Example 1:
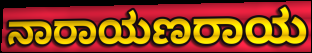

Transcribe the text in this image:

ನಾರಾಯಣರಾಯ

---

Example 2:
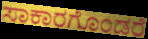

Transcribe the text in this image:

ಸಾಕಾರಗೊಂಡರೆ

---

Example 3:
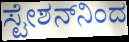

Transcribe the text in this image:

ಸ್ಟೇಶನ್‌ನಿಂದ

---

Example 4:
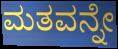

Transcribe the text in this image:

ಮತವನ್ನೇ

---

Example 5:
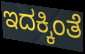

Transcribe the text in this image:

ಇದಕ್ಕಿಂತೆ